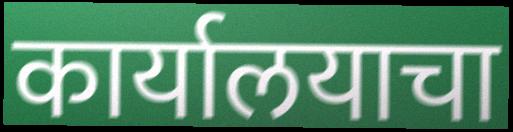
कार्यालयाचा